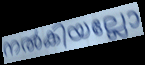
നൽകിയല്ലോ